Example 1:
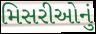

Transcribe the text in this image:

મિસરીઓનું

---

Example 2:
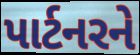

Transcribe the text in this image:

પાર્ટનરને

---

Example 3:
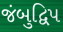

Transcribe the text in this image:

જંબુદ્વિપ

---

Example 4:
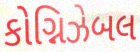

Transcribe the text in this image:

કોગ્નિઝેબલ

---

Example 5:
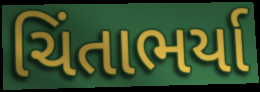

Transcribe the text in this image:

ચિંતાભર્યા